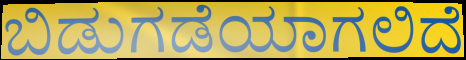
ಬಿಡುಗಡೆಯಾಗಲಿದೆ